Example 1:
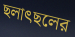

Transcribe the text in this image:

ছলাৎছলের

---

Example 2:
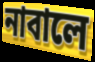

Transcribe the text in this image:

নাবালে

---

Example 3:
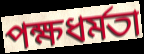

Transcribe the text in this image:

পক্ষধর্মতা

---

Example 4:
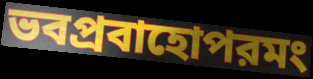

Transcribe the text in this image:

ভবপ্রবাহোপরমং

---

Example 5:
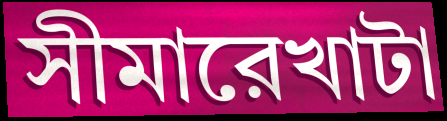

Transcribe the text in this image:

সীমারেখাটা